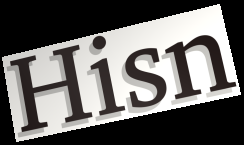
Hisn